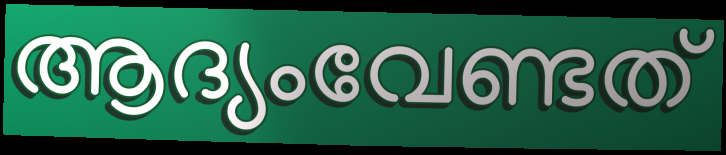
ആദ്യംവേണ്ടത്